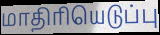
மாதிரியெடுப்பு